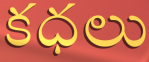
కధలు